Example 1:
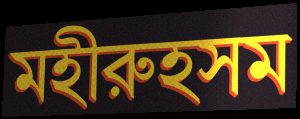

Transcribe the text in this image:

মহীরুহসম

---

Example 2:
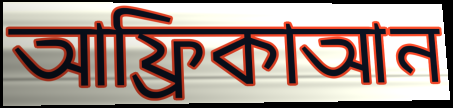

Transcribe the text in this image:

আফ্রিকাআন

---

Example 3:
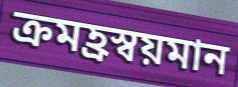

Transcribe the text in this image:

ক্রমহ্রস্বয়মান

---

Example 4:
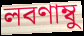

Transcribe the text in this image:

লবণাম্বু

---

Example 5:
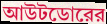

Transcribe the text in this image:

আউটডোরের